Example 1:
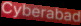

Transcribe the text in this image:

Cyberabad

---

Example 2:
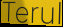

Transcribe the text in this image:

Terul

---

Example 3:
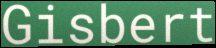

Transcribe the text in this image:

Gisbert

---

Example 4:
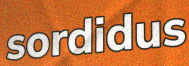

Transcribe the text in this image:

sordidus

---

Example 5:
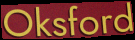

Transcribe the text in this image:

Oksford